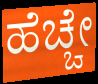
ಹೆಚ್ಚೇ